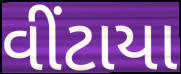
વીંટાયા